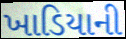
ખાડિયાની